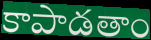
కాపాడతాం